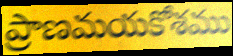
ప్రాణమయకోశము